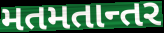
મતમતાન્તર